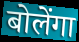
बोलेंगा